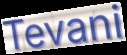
Tevani